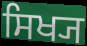
ਸਿਖ੍ਯ